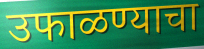
उफाळण्याचा